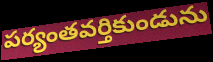
పర్యంతవర్తికుండును